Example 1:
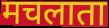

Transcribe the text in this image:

मचलाता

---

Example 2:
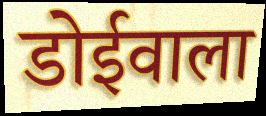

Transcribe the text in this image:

डोईवाला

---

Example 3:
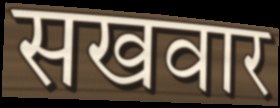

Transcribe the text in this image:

सखवार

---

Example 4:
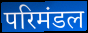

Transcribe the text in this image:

परिमंडल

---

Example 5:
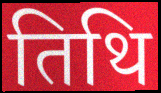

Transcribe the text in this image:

तिथि